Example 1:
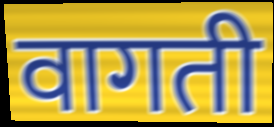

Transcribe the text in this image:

वागती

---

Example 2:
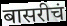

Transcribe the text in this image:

बासरीचं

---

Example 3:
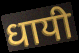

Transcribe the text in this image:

धायी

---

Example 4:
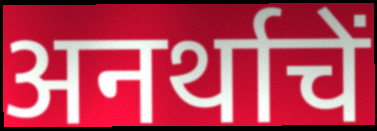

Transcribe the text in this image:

अनर्थाचें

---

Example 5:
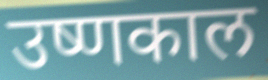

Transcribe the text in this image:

उष्णकाल